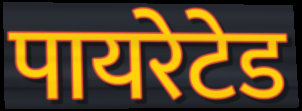
पायरेटेड